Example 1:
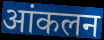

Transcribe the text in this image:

आंकलन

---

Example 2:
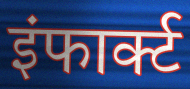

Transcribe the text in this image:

इंफार्क्ट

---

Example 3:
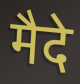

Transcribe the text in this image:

मैदे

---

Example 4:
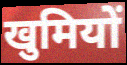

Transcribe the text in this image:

खुमियों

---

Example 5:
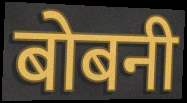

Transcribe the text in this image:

बोबनी